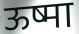
ऊष्‍मा